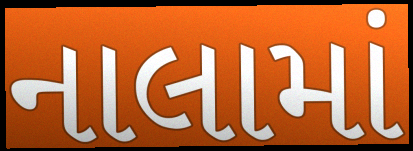
નાલામાં